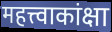
महत्त्वाकांक्षा